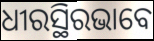
ଧୀରସ୍ଥିରଭାବେ